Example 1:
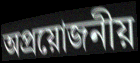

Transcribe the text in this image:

অপ্ৰয়োজনীয়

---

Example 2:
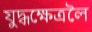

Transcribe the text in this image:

যুদ্ধক্ষেত্ৰলৈ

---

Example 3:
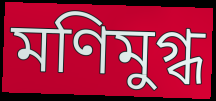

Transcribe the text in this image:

মণিমুগ্ধ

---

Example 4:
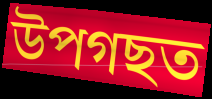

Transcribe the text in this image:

উপগছত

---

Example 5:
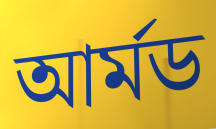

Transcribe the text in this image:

আৰ্মড